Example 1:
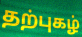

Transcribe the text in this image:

தற்புகழ்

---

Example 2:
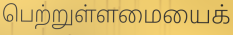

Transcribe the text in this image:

பெற்றுள்ளமையைக்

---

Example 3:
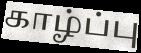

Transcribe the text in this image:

காழ்ப்பு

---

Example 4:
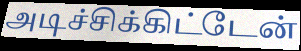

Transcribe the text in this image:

அடிச்சிக்கிட்டேன்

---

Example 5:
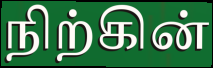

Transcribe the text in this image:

நிற்கின்